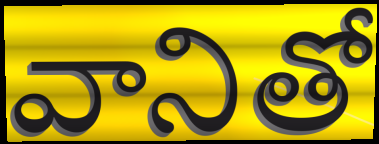
వానితో